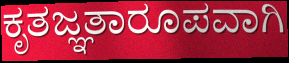
ಕೃತಜ್ಞತಾರೂಪವಾಗಿ